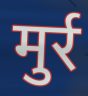
मुर्र